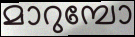
മാറുമ്പോ